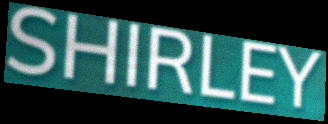
SHIRLEY